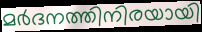
മർദനത്തിനിരയായി